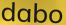
dabo